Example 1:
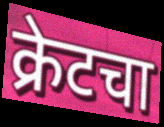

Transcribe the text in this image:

क्रेटचा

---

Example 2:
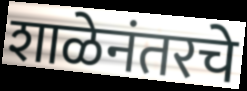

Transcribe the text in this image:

शाळेनंतरचे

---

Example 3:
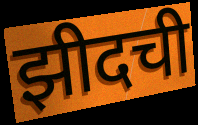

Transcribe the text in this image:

झीदची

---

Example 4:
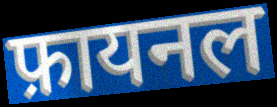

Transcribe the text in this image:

फ़ायनल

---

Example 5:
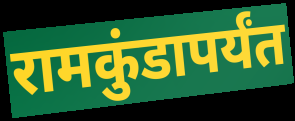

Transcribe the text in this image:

रामकुंडापर्यंत